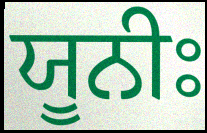
ਯੂਨੀਃ